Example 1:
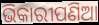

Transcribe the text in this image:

ଭିକାରୀପଣିଆ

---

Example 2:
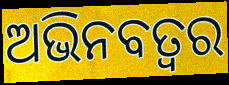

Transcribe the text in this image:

ଅଭିନବତ୍ୱର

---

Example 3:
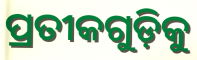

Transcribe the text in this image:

ପ୍ରତୀକଗୁଡ଼ିକୁ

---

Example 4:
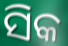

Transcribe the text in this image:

ସିକ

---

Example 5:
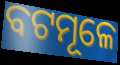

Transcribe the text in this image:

ବଟମୂଳେ